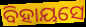
ବିହାୟସେ